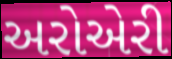
અરોએરી